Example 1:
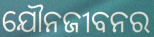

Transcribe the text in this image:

ଯୌନଜୀବନର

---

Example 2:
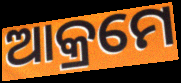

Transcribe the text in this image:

ଆକ୍ରମେ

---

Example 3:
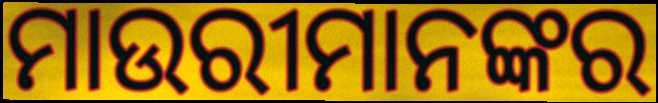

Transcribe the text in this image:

ମାଉରୀମାନଙ୍କର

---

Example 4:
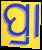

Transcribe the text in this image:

ପ୍ରା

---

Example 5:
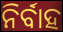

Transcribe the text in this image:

ନିର୍ବାହ